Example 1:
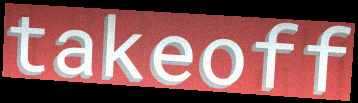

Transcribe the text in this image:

takeoff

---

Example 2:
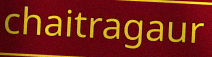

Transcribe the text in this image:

chaitragaur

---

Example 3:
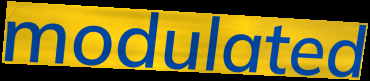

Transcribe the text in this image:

modulated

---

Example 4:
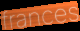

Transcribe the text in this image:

frances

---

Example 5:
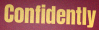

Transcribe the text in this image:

Confidently